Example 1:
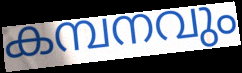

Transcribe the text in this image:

കമ്പനവും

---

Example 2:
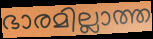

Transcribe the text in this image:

ഭാരമില്ലാത്ത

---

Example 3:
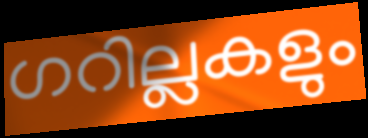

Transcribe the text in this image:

ഗറില്ലകളും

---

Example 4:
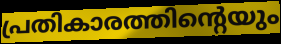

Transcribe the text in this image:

പ്രതികാരത്തിന്റെയും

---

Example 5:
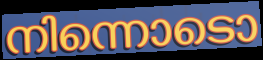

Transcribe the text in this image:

നിന്നൊടൊ